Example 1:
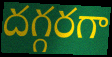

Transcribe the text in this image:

దగ్గరగా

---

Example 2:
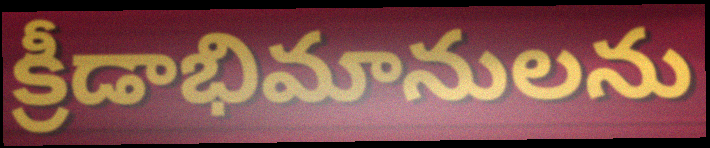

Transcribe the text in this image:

క్రీడాభిమానులను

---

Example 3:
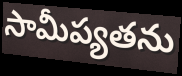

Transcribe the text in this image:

సామీప్యతను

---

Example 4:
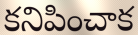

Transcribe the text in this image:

కనిపించాక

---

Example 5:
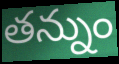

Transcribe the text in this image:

తన్నుం